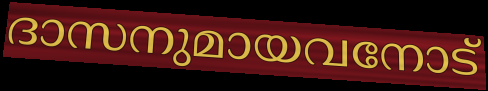
ദാസനുമായവനോട്